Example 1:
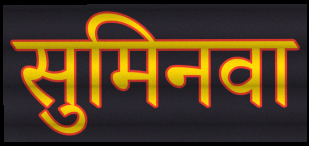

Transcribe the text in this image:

सुमिनवा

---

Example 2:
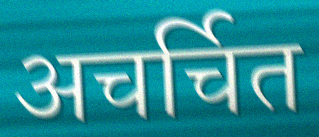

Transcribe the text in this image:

अचर्चित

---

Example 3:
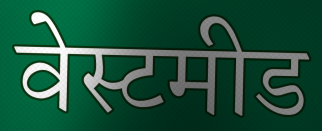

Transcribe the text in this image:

वेस्टमीड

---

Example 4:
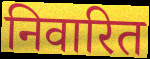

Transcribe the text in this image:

निवारित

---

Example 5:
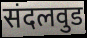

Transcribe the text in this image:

संदलवुड